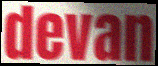
devan